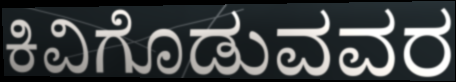
ಕಿವಿಗೊಡುವವರ